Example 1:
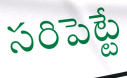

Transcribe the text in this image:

సరిపెట్టే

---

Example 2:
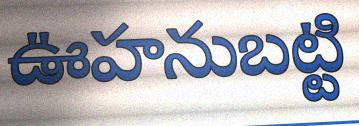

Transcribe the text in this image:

ఊహనుబట్టి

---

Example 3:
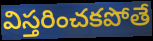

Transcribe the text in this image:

విస్తరించకపోతే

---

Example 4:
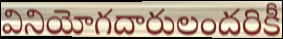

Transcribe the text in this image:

వినియోగదారులందరికీ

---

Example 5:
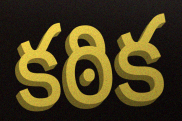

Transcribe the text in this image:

కఠిక